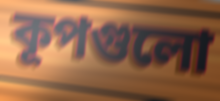
কূপগুলো